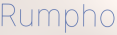
Rumpho